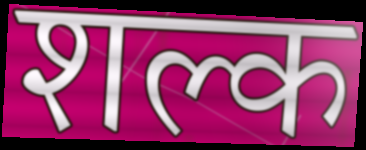
शल्क